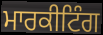
ਮਾਰਕੀਟਿੰਗ